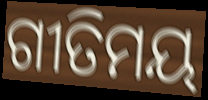
ଗୀତିମୟ